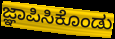
ಜ್ಞಾಪಿಸಿಕೊಂಡು